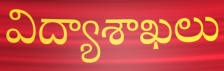
విద్యాశాఖలు